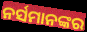
ନର୍ସମାନଙ୍କର